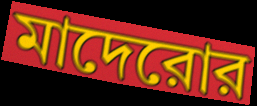
মাদেরোর